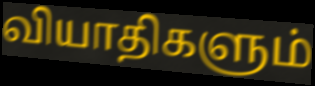
வியாதிகளும்